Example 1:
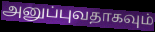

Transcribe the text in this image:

அனுப்புவதாகவும்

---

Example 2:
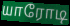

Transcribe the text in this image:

யாரோடி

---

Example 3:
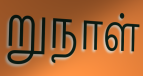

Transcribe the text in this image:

றுநாள்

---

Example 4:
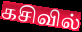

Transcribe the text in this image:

கசிவில்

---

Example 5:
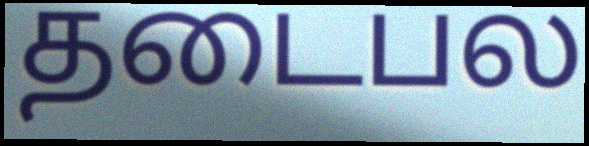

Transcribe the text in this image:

தடைபல